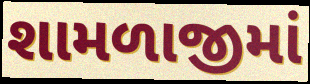
શામળાજીમાં